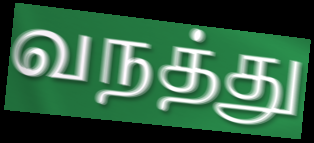
வநத்து